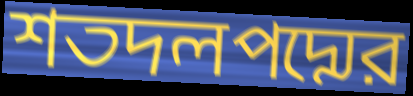
শতদলপদ্মের